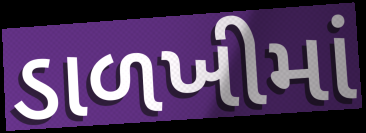
ડાળખીમાં